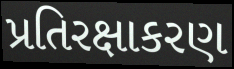
પ્રતિરક્ષાકરણ